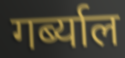
गर्ब्याल